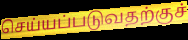
செய்யப்படுவதற்குச்